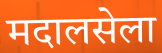
मदालसेला